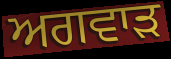
ਅਗਵਾੜ